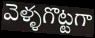
వెళ్ళగొట్టగా